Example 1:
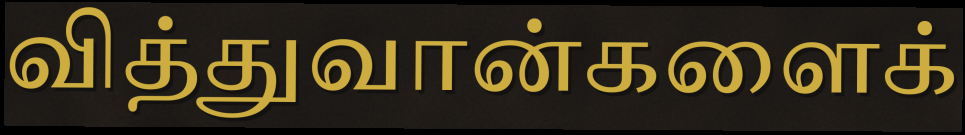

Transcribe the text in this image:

வித்துவான்களைக்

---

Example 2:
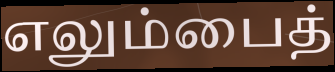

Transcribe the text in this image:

எலும்பைத்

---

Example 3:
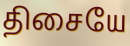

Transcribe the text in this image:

திசையே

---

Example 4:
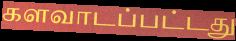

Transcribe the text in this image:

களவாடப்பட்டது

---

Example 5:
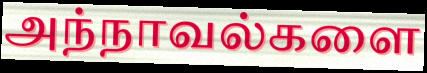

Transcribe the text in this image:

அந்நாவல்களை